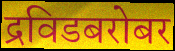
द्रविडबरोबर